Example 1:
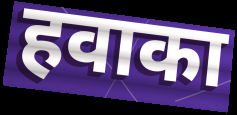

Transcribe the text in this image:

हवाका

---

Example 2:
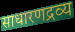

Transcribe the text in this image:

साधारणद्रव्य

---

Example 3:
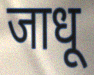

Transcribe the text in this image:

जाधू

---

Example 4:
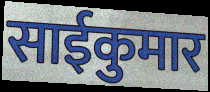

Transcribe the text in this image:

साईकुमार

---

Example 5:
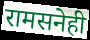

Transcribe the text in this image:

रामसनेही